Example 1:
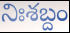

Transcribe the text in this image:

నిఃశబ్దం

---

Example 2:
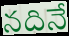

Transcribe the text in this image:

నదినే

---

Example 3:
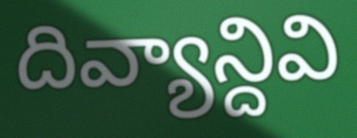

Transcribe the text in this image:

దివ్యాన్దివి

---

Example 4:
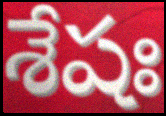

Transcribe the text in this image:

శేషః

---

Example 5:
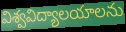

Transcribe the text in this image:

విశ్వవిద్యాలయాలను